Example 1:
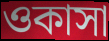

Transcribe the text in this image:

ওকাসা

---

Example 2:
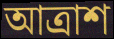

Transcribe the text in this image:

আত্রাশ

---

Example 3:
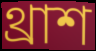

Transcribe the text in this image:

থ্রাশ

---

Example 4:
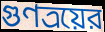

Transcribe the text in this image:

গুণত্রয়ের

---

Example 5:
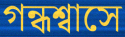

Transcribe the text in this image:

গন্ধশ্বাসে